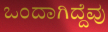
ಒಂದಾಗಿದ್ದೆವು